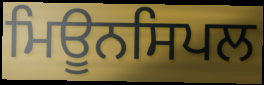
ਮਿਊਨਸਿਪਲ